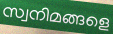
സ്വനിമങ്ങളെ